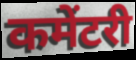
कमेंटरी